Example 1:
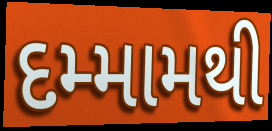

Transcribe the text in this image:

દમ્મામથી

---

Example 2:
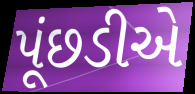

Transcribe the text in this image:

પૂંછડીએ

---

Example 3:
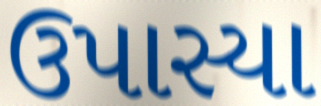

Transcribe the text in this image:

ઉપાસ્યા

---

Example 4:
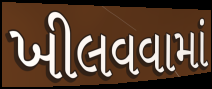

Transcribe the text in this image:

ખીલવવામાં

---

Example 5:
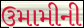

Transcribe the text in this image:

ઉમામીની